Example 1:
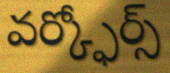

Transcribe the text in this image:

వర్క్ఫోర్స్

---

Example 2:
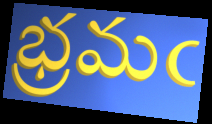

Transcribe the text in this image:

భ్రమఁ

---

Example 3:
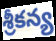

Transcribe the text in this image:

శ్రీకన్య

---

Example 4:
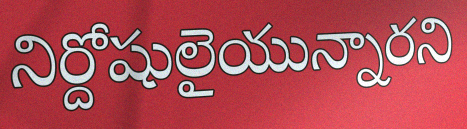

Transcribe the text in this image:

నిర్దోషులైయున్నారని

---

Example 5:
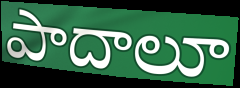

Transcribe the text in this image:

పాదాలూ